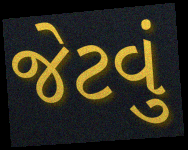
જેટવું